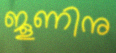
ജൂണിനു